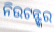
ନିଉଟନ୍ଙ୍କର